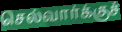
செல்வார்க்குச்